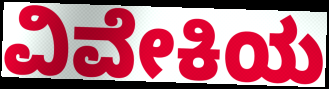
ವಿವೇಕಿಯ